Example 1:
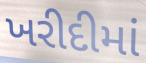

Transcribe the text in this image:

ખરીદીમાં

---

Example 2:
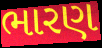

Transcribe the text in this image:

ભારણ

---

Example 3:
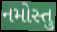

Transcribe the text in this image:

નમોસ્તુ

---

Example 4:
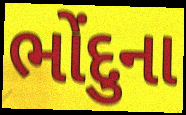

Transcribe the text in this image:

ભોંદુના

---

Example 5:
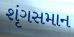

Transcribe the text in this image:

શૃંગસમાન